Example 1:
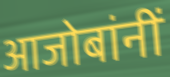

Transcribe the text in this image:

आजोबांनीं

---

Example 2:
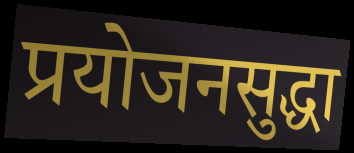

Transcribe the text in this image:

प्रयोजनसुद्धा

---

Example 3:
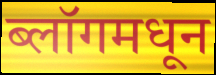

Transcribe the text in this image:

ब्लॉगमधून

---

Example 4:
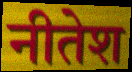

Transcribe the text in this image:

नीतेश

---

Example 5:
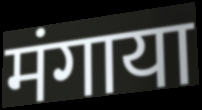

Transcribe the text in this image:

मंगाया